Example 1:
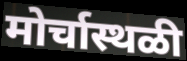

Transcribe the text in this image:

मोर्चास्थळी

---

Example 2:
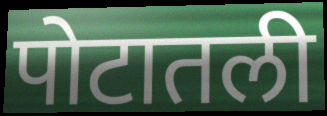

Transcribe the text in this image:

पोटातली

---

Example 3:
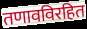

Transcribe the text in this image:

तणावविरहित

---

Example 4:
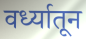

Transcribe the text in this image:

वर्ध्यातून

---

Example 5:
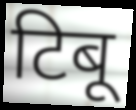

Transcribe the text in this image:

टिबू